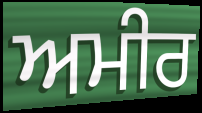
ਅਮੀਰ